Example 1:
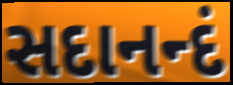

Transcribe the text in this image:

સદાનન્દં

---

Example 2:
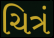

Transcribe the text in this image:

ચિત્રં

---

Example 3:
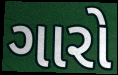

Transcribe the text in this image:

ગારો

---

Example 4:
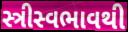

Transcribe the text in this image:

સ્ત્રીસ્વભાવથી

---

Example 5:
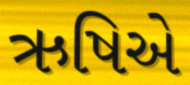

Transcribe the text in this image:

ઋષિએ